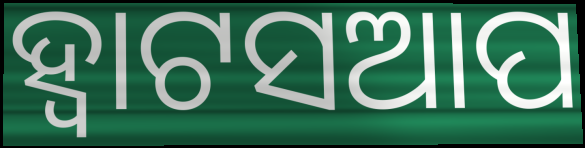
ହ୍ୱାଟସଆପ